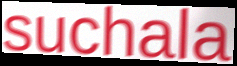
suchala